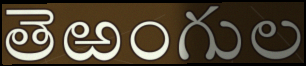
తెఱంగుల